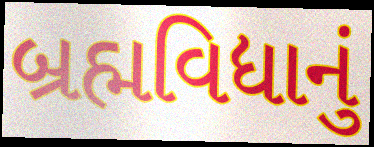
બ્રહ્મવિદ્યાનું